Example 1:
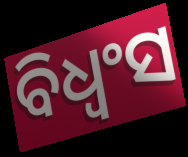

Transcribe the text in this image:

ବିଧ୍ଵଂସ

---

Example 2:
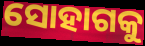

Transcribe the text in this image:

ସୋହାଗକୁ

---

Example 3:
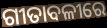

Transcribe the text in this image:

ଗୀତାବଳୀରେ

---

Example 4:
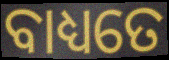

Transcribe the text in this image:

ବାଧ୍ଯତେ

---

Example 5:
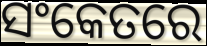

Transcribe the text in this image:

ସଂକେତରେ